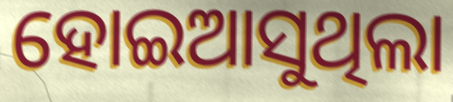
ହୋଇଆସୁଥିଲା